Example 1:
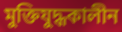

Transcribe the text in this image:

মুক্তিযুদ্ধকালীন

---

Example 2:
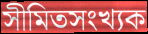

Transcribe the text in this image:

সীমিতসংখ্যক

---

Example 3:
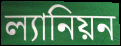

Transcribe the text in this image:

ল্যানিয়ন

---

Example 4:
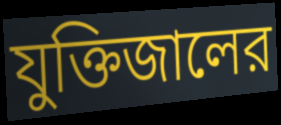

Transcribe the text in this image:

যুক্তিজালের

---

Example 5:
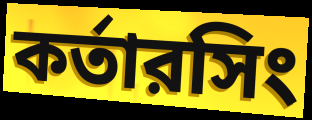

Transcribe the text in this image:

কর্তারসিং